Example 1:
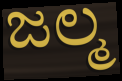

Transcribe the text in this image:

ಜಲ್ಮ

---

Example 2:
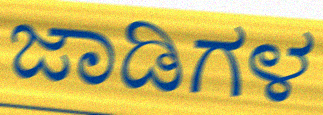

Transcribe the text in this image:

ಜಾಡಿಗಳ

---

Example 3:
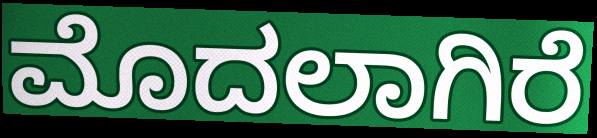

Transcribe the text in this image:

ಮೊದಲಾಗಿರೆ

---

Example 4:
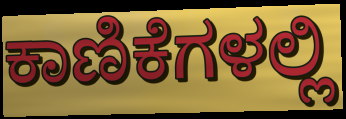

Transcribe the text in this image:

ಕಾಣಿಕೆಗಳಲ್ಲಿ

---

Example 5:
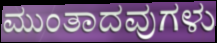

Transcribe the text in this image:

ಮುಂತಾದವುಗಳು